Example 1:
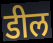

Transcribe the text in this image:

डील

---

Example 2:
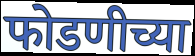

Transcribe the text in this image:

फोडणीच्या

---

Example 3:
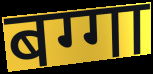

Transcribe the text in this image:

बग्गा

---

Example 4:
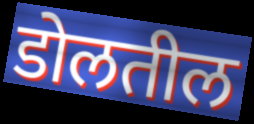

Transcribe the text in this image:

डोलतील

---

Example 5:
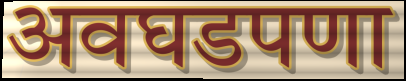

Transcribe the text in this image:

अवघडपणा